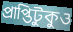
প্রাপ্তিটুকুও